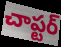
చాప్టర్